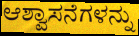
ಆಶ್ವಾಸನೆಗಳನ್ನು